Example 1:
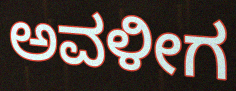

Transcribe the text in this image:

ಅವಳೀಗ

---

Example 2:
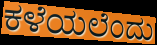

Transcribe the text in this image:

ಕಳೆಯಲೆಂದು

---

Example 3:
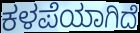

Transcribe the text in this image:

ಕಳಪೆಯಾಗಿದೆ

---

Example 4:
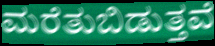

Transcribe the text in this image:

ಮರೆತುಬಿಡುತ್ತವೆ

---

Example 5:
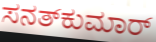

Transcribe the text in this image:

ಸನತ್‌ಕುಮಾರ್